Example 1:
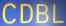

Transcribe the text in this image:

CDBL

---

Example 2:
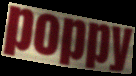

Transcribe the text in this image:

poppy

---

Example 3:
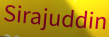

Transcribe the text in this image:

Sirajuddin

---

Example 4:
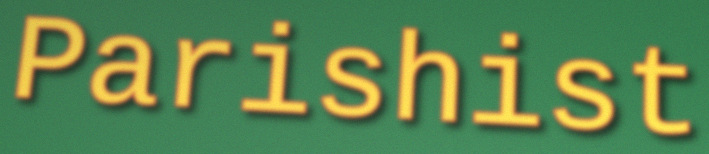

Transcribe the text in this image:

Parishist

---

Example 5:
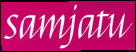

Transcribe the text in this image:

samjatu